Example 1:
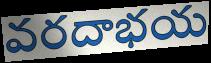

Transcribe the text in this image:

వరదాభయ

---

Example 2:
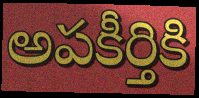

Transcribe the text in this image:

అపకీర్తికి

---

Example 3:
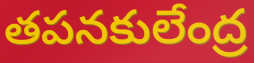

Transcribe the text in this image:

తపనకులేంద్ర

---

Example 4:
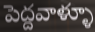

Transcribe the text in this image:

పెద్దవాళ్ళూ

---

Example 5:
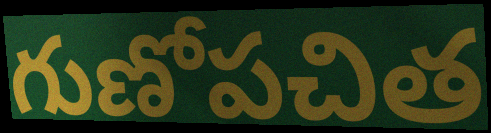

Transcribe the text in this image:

గుణోపచిత